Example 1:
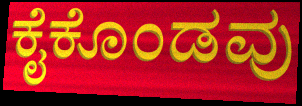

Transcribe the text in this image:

ಕೈಕೊಂಡವು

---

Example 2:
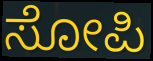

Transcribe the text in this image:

ಸೋಪಿ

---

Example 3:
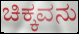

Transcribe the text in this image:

ಚಿಕ್ಕವನು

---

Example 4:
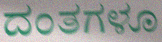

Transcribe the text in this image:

ದಂತಗಳೂ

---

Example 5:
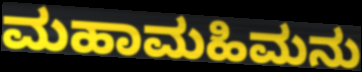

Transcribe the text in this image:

ಮಹಾಮಹಿಮನು